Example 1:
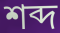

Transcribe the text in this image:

শব্দ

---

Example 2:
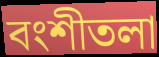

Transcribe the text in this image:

বংশীতলা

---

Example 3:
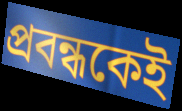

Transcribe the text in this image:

প্রবন্ধকেই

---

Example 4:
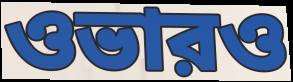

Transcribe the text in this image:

ওভারও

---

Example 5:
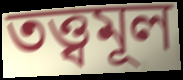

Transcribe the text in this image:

তত্ত্বমূল